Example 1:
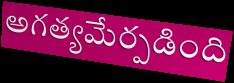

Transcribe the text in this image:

అగత్యమేర్పడింది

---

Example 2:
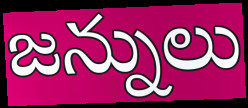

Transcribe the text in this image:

జన్నులు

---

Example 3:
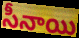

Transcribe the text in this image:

సీనాయి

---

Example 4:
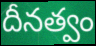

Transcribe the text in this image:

దీనత్వం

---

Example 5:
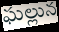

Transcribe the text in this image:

ఘల్లున